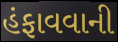
હંફાવવાની